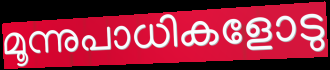
മൂന്നുപാധികളോടു